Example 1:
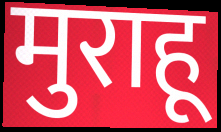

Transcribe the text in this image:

मुराहू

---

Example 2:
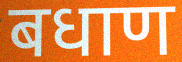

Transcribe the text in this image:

बधाण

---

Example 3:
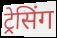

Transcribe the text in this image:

ट्रेसिंग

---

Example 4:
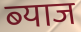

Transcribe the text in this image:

ब्‍याज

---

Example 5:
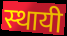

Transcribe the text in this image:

स्‍थायी